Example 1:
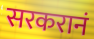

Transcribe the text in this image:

सरकरानं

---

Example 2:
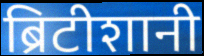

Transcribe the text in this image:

ब्रिटीशानी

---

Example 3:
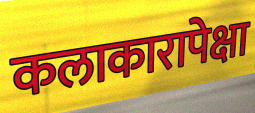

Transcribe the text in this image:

कलाकारापेक्षा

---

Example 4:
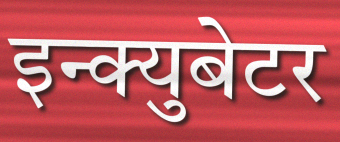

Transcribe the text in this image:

इन्क्‍युबेटर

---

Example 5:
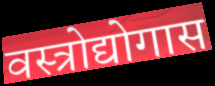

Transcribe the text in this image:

वस्त्रोद्योगास